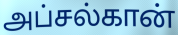
அப்சல்கான்